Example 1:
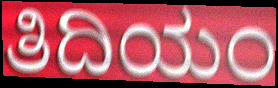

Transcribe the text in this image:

ತಿದಿಯಂ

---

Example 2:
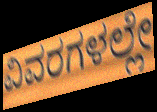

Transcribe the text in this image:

ವಿವರಗಳಲ್ಲೇ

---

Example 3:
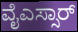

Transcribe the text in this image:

ವೈಎಸ್ಸಾರ್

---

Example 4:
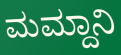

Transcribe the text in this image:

ಮಮ್ದಾನಿ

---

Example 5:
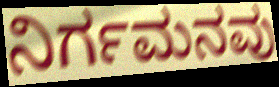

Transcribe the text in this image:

ನಿರ್ಗಮನವು